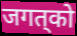
जगत्‌को